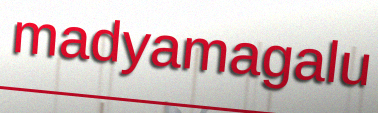
madyamagalu